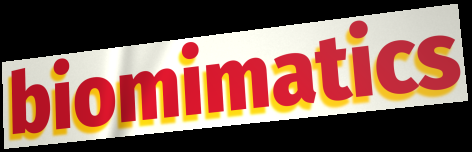
biomimatics